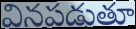
వినపడుతూ